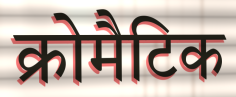
क्रोमैटिक